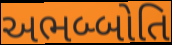
અભબ્બોતિ